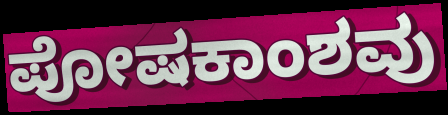
ಪೋಷಕಾಂಶವು